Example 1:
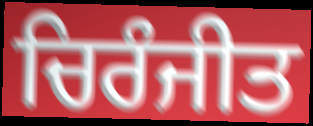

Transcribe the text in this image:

ਚਿਰੰਜੀਤ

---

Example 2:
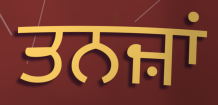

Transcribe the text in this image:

ਤਨਜ਼ਾਂ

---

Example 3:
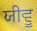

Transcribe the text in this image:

ਯੀਵੂ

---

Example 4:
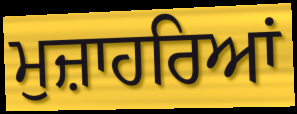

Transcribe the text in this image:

ਮੁਜ਼ਾਹਰਿਆਂ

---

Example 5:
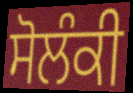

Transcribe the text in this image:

ਸੋਲੰਕੀ